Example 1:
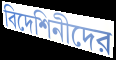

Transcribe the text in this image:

বিদেশিনীদের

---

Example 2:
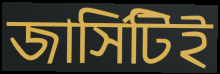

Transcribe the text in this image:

জার্সিটিই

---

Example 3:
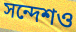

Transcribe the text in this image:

সন্দেশও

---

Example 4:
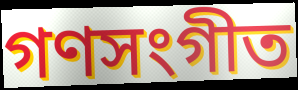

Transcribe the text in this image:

গণসংগীত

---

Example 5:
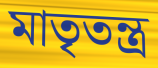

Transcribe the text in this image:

মাতৃতন্ত্র